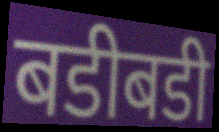
बडीबडी